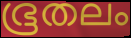
ഭൂതലം